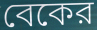
বেকের